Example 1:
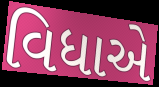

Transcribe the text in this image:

વિધાએ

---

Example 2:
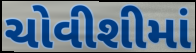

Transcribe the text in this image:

ચોવીશીમાં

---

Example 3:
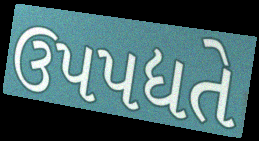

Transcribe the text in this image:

ઉપપદ્યતે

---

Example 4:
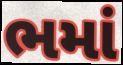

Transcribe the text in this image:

ભમાં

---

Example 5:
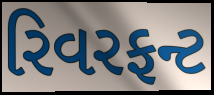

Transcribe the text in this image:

રિવરફન્ટ